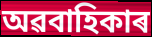
অৱবাহিকাৰ